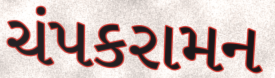
ચંપકરામન